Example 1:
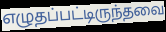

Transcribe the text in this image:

எழுதப்பட்டிருந்தவை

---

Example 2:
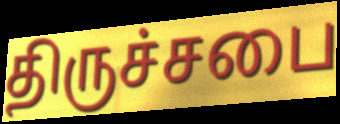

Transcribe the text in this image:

திருச்சபை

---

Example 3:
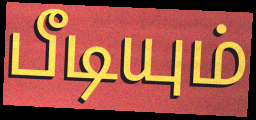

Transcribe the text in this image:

பீடியும்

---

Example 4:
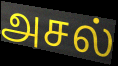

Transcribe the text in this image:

அசல்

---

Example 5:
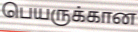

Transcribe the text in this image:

பெயருக்கான